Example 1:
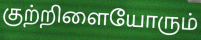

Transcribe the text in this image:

குற்றிளையோரும்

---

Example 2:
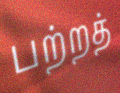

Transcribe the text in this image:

பற்றத்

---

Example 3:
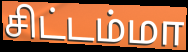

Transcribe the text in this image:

சிட்டம்மா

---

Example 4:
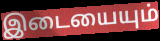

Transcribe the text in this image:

இடையையும்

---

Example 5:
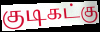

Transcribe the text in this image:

குடிகட்கு